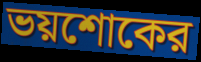
ভয়শোকের